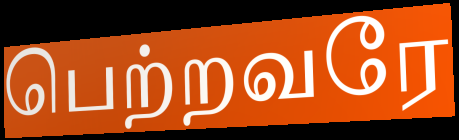
பெற்றவரே